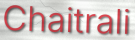
Chaitrali